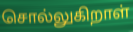
சொல்லுகிறாள்